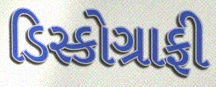
ડિસ્કોગ્રાફી